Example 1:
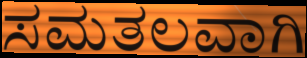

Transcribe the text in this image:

ಸಮತಲವಾಗಿ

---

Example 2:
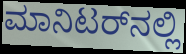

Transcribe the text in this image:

ಮಾನಿಟರ್‌ನಲ್ಲಿ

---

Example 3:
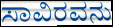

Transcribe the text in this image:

ಸಾವಿರವನು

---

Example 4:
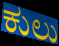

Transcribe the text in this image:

ಕುಲು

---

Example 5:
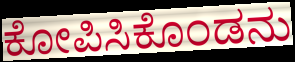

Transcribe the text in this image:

ಕೋಪಿಸಿಕೊಂಡನು